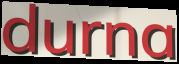
durna